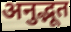
अनुद्भूत